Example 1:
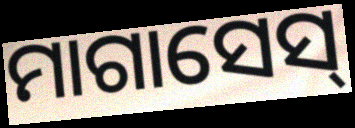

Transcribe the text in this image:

ମାଗାସେସ୍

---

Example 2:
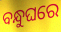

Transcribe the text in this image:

ବନ୍ଧୁଘରେ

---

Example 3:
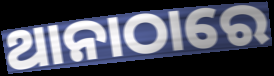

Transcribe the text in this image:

ଥାନାଠାରେ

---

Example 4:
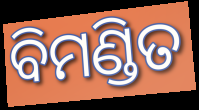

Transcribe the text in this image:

ବିମଣ୍ଡିତ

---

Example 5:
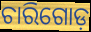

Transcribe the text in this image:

ଚାରିଗୋଡ଼